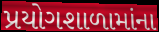
પ્રયોગશાળામાંના